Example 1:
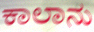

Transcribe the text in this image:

ಕಾಲಾನು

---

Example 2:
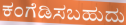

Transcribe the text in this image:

ಕಂಗೆಡಿಸಬಹುದು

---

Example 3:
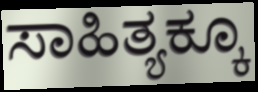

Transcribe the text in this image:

ಸಾಹಿತ್ಯಕ್ಕೂ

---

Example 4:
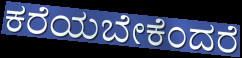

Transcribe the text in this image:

ಕರೆಯಬೇಕೆಂದರೆ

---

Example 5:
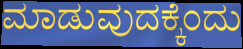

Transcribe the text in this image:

ಮಾಡುವುದಕ್ಕೆಂದು